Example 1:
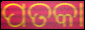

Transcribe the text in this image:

ପତକା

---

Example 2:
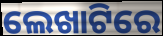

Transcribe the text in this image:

ଲେଖାଟିରେ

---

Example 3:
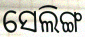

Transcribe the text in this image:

ସେଲିଙ୍ଗ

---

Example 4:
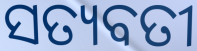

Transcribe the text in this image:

ସତ୍ୟବତୀ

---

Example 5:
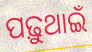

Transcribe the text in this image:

ପଢ଼ୁଥାଇଁ